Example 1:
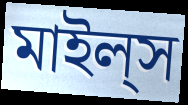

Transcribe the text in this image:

মাইল্‌স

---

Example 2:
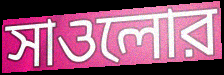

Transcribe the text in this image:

সাওলোর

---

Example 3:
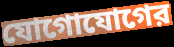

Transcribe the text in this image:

যোগোযোগের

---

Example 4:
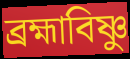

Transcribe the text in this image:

ব্রহ্মাবিষ্ণু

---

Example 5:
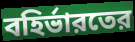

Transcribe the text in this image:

বহির্ভারতের